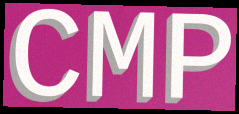
CMP